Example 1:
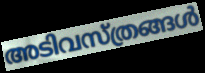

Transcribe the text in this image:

അടിവസ്ത്രങ്ങൾ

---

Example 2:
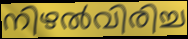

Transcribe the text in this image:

നിഴൽവിരിച്ച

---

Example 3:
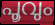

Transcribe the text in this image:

പൂവും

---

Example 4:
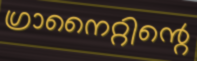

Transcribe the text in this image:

ഗ്രാനൈറ്റിന്റെ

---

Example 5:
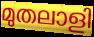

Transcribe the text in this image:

മുതലാളി